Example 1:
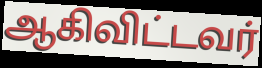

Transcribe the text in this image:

ஆகிவிட்டவர்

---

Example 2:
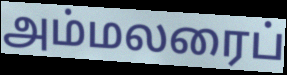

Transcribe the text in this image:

அம்மலரைப்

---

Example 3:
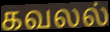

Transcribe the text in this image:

கவலல்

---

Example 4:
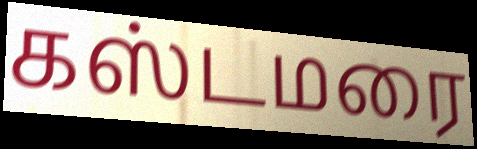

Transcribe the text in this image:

கஸ்டமரை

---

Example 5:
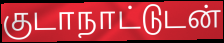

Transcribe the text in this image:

குடாநாட்டுடன்